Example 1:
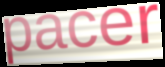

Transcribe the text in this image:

pacer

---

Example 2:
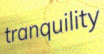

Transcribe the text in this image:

tranquility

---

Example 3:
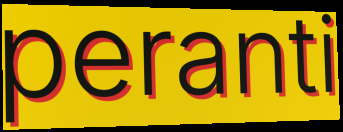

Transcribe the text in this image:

peranti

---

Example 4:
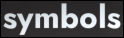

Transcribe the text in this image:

symbols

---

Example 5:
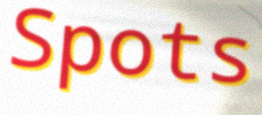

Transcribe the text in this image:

Spots